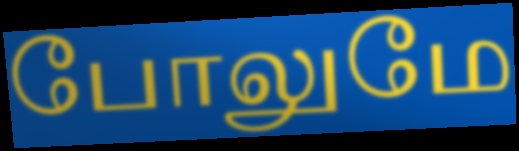
போலுமே